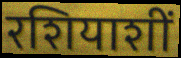
रशियाशीं